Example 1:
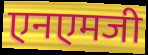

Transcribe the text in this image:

एनएमजी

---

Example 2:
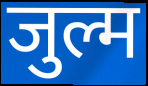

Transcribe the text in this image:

जुल्म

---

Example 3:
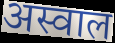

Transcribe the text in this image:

अस्वाल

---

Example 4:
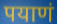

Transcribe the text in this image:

पयाणं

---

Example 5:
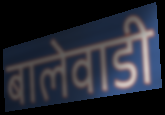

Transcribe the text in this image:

बालेवाडी